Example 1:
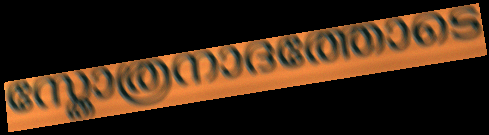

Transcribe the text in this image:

സ്തോത്രനാദത്തോടെ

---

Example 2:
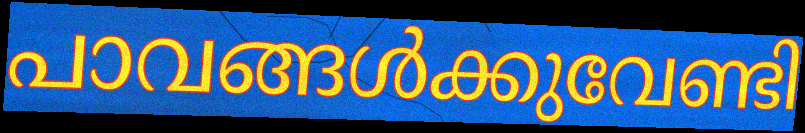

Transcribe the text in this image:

പാവങ്ങൾക്കുവേണ്ടി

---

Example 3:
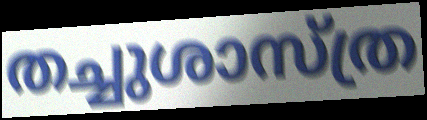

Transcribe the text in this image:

തച്ചുശാസ്ത്ര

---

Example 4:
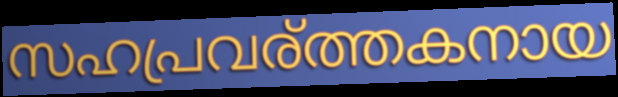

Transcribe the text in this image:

സഹപ്രവര്ത്തകനായ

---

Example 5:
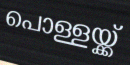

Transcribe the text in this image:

പൊള്ളയ്ക്ക്